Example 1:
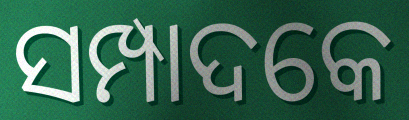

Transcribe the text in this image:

ସମ୍ପାଦକେ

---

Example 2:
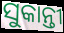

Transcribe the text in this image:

ସୁକାନ୍ତୀ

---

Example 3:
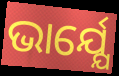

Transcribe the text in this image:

ଭାର୍ଯ୍ଯେ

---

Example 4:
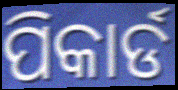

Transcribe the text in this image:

ପିକାର୍ଡ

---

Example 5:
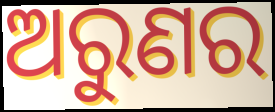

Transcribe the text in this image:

ଅରୁଣର